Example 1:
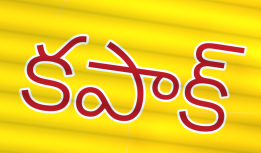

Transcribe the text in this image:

కపాక్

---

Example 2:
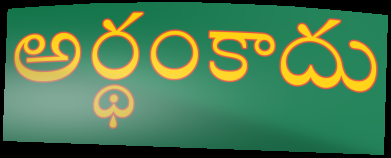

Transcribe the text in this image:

అర్థంకాదు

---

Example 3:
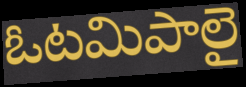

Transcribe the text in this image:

ఓటమిపాలై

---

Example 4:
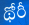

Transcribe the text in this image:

థోరీ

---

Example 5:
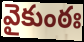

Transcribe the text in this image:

వైకుంఠః